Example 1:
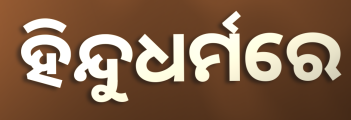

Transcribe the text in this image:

ହିନ୍ଦୁଧର୍ମରେ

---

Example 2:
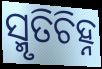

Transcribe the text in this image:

ସ୍ମୃତିଚିହ୍ନ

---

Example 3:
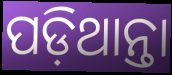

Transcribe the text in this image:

ପଡ଼ିଥାନ୍ତା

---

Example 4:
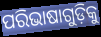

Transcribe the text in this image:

ପରିଭାଷାଗୁଡ଼ିକୁ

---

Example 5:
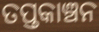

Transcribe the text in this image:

ତପ୍ତକାଞ୍ଚନ